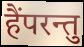
हैंपरन्तु